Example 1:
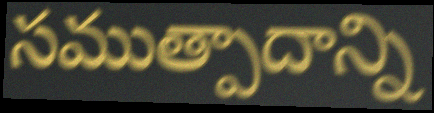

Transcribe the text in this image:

సముత్పాదాన్ని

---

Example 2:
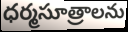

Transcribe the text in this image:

ధర్మసూత్రాలను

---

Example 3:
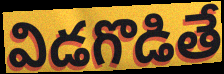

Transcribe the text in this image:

విడగొడితే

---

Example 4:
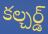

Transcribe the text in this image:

కల్చర్డ్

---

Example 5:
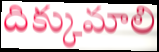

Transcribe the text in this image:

దిక్కుమాలి